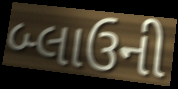
બ્લાઉની